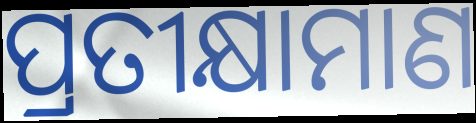
ପ୍ରତୀକ୍ଷାମାଣ